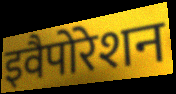
इवैपोरेशन